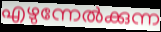
എഴുന്നേൽക്കുന്ന